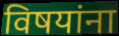
विषयांना